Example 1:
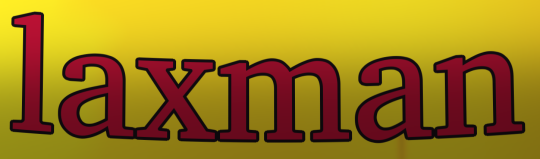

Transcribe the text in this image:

laxman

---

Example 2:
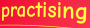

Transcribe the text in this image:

practising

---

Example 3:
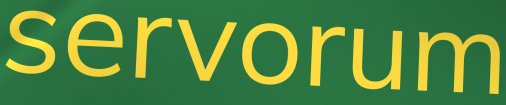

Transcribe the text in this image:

servorum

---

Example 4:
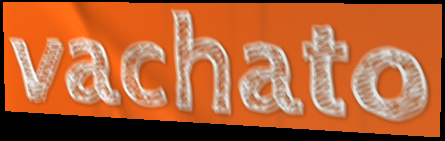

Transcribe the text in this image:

vachato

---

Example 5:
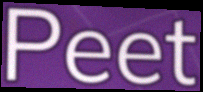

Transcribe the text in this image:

Peet